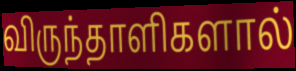
விருந்தாளிகளால்